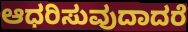
ಆಧರಿಸುವುದಾದರೆ